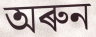
অৰুন